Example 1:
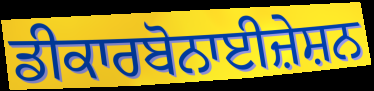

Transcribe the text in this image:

ਡੀਕਾਰਬੋਨਾਈਜ਼ੇਸ਼ਨ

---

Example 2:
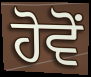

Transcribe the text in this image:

ਹੋਵੋਂ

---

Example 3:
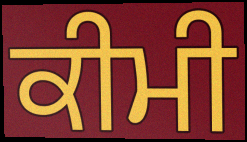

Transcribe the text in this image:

ਕੀਮੀ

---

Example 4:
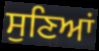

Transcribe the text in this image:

ਸੁਣਿਆਂ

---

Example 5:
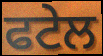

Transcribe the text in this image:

ਫਟੇਲ